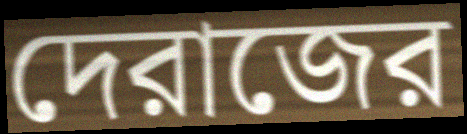
দেরাজের